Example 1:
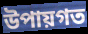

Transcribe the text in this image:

উপায়গত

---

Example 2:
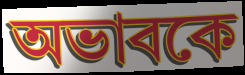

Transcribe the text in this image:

অভাবকে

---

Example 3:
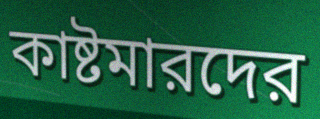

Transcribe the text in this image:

কাষ্টমারদের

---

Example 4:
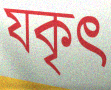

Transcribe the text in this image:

যকৃৎ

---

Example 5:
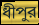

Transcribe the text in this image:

ধীপুর